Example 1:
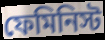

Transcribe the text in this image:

ফেমিনিস্ট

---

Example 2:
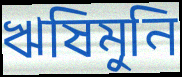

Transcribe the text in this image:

ঋষিমুনি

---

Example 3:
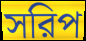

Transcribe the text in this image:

সরিপ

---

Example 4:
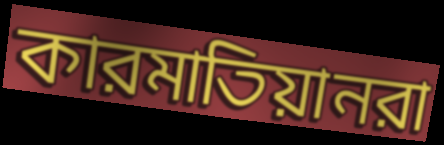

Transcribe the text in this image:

কারমাতিয়ানরা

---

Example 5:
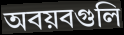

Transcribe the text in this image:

অবয়বগুলি